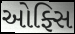
ઓફ્સિ